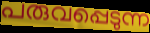
പരുവപ്പെടുന്ന